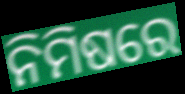
ନିମିଷରେ